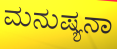
ಮನುಷ್ಯನಾ